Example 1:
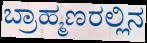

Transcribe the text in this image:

ಬ್ರಾಹ್ಮಣರಲ್ಲಿನ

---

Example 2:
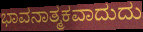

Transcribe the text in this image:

ಭಾವನಾತ್ಮಕವಾದುದು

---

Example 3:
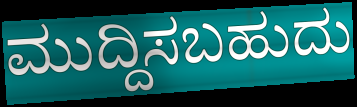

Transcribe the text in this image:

ಮುದ್ದಿಸಬಹುದು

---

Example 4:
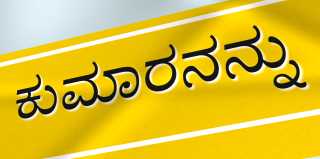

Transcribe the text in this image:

ಕುಮಾರನನ್ನು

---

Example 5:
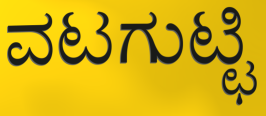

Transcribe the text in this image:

ವಟಗುಟ್ಟಿ